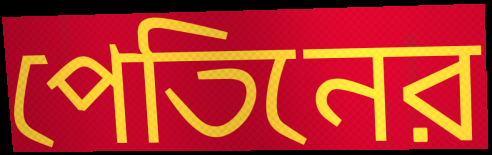
পেতিনের